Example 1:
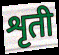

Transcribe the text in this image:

शृती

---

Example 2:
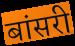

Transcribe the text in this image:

बांसरी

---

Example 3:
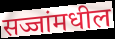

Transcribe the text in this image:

सज्जांमधील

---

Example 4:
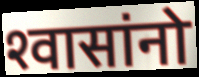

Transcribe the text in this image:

श्वासांनो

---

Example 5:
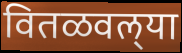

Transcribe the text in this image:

वितळवल्या